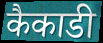
कैकाडी